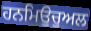
ਹਨਮਿਉਚੁਅਲ